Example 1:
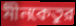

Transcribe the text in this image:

মীনকেতুর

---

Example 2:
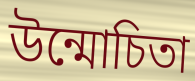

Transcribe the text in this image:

উন্মোচিতা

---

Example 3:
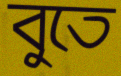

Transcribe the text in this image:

বুতে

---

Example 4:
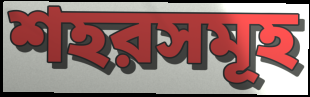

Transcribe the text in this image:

শহরসমূহ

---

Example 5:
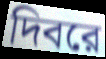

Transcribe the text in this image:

দিবরে